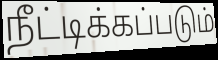
நீட்டிக்கப்படும்